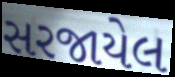
સરજાયેલ